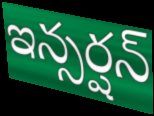
ఇన్సర్షన్